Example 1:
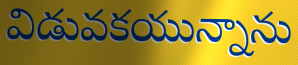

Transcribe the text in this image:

విడువకయున్నాను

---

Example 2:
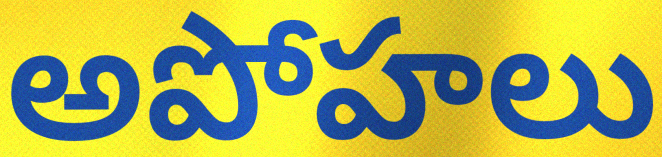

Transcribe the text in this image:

అపోహలు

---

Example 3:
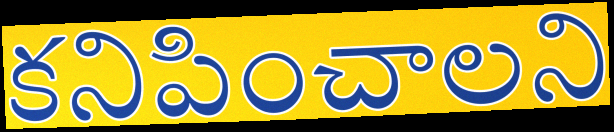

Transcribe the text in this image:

కనిపించాలని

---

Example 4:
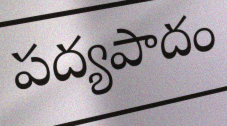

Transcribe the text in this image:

పద్యపాదం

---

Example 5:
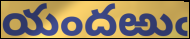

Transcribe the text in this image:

యందఱుఁ